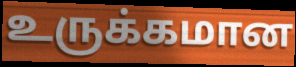
உருக்கமான